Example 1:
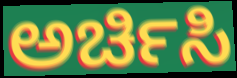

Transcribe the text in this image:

ಅರ್ಚಿಸಿ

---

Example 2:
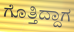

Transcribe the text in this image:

ಗೊತ್ತಿದ್ದಾಗ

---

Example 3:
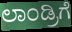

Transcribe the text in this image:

ಲಾಂಡ್ರಿಗೆ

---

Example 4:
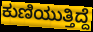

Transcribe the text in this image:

ಕುಣಿಯುತ್ತಿದ್ದೆ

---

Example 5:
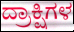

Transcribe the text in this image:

ದ್ರಾಕ್ಷಿಗಳ